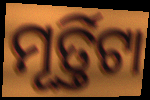
ମୂର୍ତ୍ତିଟା